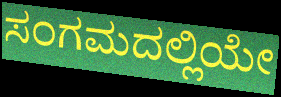
ಸಂಗಮದಲ್ಲಿಯೇ